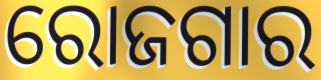
ରୋଜଗାର